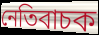
নেতিবাচক